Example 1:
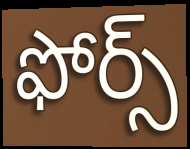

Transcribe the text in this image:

ఫోర్స్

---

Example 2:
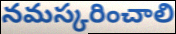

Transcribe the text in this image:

నమస్కరించాలి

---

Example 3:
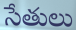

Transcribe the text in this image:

సేతులు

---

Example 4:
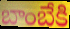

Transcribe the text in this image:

బాంబేకి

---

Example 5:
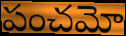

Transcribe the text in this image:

పంచమో